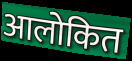
आलोकित